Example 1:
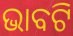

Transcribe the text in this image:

ଭାବଟି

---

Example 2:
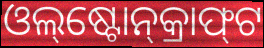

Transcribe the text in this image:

ଓଲ୍‌ଷ୍ଟୋନ୍‌କ୍ରାଫ୍‌ଟ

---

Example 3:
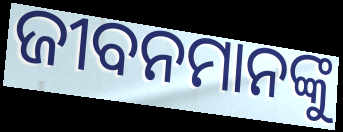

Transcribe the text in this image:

ଜୀବନମାନଙ୍କୁ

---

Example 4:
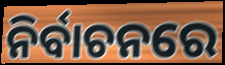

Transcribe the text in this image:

ନିର୍ବାଚନରେ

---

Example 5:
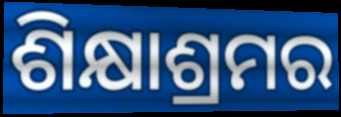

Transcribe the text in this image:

ଶିକ୍ଷାଶ୍ରମର